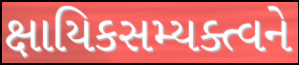
ક્ષાયિકસમ્યક્ત્વને